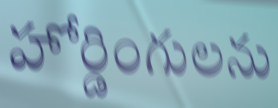
హోర్డింగులను